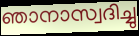
ഞാനാസ്വദിച്ചു